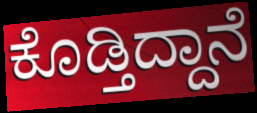
ಕೊಡ್ತಿದ್ದಾನೆ